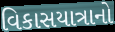
વિકાસયાત્રાનો